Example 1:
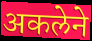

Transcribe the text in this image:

अकलेने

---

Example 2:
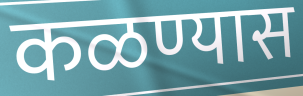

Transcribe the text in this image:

कळण्यास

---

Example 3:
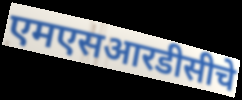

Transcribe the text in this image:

एमएसआरडीसीचे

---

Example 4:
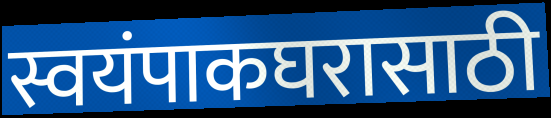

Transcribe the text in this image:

स्वयंपाकघरासाठी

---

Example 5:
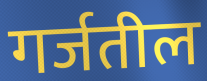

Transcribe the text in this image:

गर्जतील